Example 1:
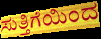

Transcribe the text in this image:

ಸುತ್ತಿಗೆಯಿಂದ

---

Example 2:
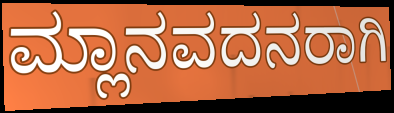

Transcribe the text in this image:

ಮ್ಲಾನವದನರಾಗಿ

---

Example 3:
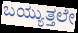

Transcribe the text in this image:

ಬಯ್ಯುತ್ತಲೇ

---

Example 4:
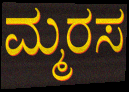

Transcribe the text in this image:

ಮ್ಮರಸ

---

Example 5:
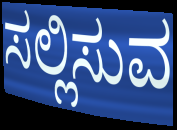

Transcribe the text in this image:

ಸಲ್ಲಿಸುವ